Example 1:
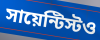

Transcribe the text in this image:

সায়েন্টিস্টও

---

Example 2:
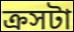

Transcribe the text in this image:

ক্রসটা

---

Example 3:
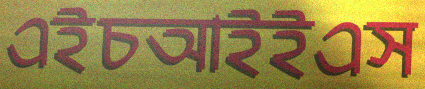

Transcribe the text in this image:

এইচআইইএস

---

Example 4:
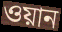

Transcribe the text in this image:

ওয়ান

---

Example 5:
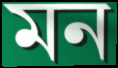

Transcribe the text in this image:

মন